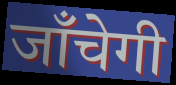
जाँचेगी